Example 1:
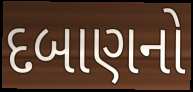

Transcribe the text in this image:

દબાણનો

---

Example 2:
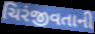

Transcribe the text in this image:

ચિરંજીવતાની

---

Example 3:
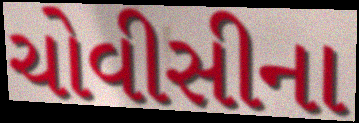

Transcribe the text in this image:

ચોવીસીના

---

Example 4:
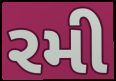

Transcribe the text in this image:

રમી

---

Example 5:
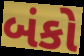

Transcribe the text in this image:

બંકો